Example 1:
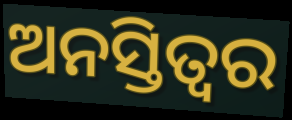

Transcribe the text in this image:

ଅନସ୍ତିତ୍ୱର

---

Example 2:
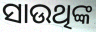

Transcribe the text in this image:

ସାଉଥିଙ୍କ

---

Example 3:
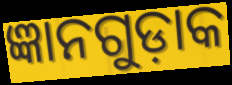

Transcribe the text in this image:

ଜ୍ଞାନଗୁଡ଼ାକ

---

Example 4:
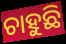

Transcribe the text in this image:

ଚାହୁଛି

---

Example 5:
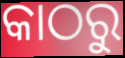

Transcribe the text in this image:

କାଠରୁ